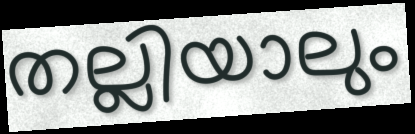
തല്ലിയാലും